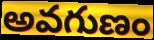
అవగుణం